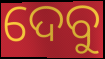
ଦେବୁ